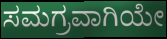
ಸಮಗ್ರವಾಗಿಯೇ